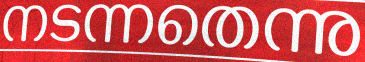
നടന്നതെന്നു